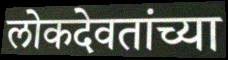
लोकदेवतांच्या